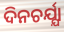
ଦିନଚର୍ଯ୍ଯା